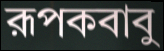
রূপকবাবু